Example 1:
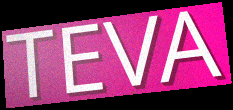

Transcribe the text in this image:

TEVA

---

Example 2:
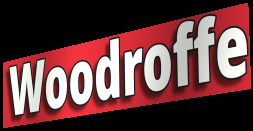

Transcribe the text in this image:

Woodroffe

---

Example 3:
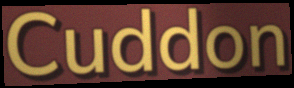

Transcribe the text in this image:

Cuddon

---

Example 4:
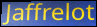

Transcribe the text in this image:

Jaffrelot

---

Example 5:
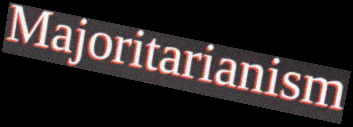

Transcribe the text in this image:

Majoritarianism